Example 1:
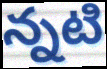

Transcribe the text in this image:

న్నటి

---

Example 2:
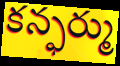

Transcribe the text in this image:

కన్ఫర్ము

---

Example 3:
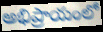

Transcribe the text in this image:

అభిప్రాయంలో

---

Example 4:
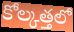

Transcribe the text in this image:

కోల్కత్తలో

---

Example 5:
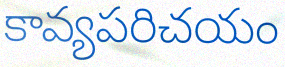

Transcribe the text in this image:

కావ్యపరిచయం